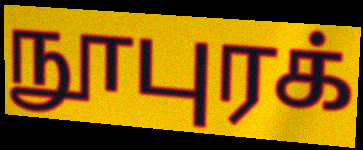
நூபுரக்